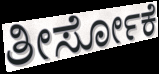
ತೀರ್ಸೋಕೆ